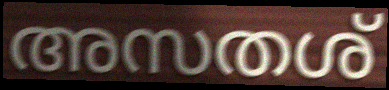
അസതശ്